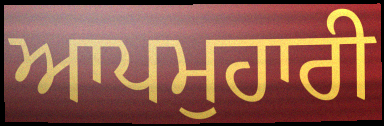
ਆਪਮੁਹਾਰੀ